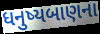
ધનુષ્યબાણના